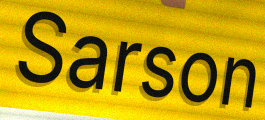
Sarson